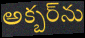
అక్బర్‌ను